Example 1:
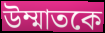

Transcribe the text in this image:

উম্মাতকে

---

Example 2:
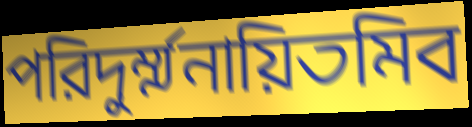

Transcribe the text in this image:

পরিদুর্ম্মনায়িতমিব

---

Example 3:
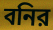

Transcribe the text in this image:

বনির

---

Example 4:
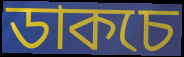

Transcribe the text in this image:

ডাকচে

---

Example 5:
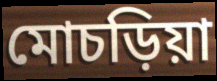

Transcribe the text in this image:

মোচড়িয়া